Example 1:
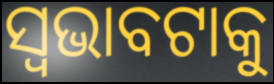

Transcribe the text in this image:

ସ୍ଵଭାବଟାକୁ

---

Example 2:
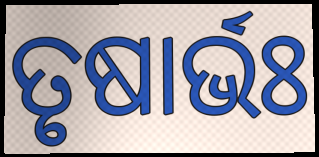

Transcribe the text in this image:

ତୃଷାର୍ଭଃ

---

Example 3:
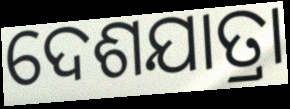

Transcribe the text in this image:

ଦେଶଯାତ୍ରା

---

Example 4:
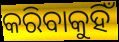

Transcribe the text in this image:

କରିବାକୁହିଁ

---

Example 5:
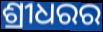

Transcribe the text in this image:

ଶ୍ରୀଧରର